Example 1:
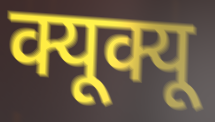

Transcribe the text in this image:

क्यूक्यू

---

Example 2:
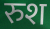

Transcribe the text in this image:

रुश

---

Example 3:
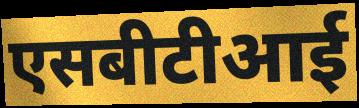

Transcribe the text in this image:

एसबीटीआई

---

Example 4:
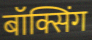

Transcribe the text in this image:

बॉक्सिंग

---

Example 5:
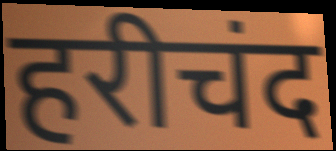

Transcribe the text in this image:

हरीचंद